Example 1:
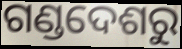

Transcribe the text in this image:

ଗଣ୍ଡଦେଶରୁ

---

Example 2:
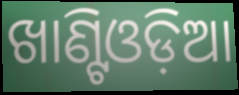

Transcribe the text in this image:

ଖାଣ୍ଟିଓଡ଼ିଆ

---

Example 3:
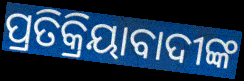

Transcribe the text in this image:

ପ୍ରତିକ୍ରିୟାବାଦୀଙ୍କ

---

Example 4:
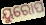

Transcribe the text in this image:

ୟୁରୋପ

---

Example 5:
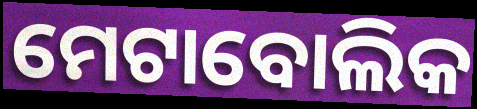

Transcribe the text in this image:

ମେଟାବୋଲିକ